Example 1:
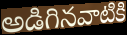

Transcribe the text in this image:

అడిగినవాటికి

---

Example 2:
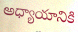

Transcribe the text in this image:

అధ్యాయానికి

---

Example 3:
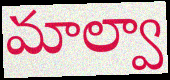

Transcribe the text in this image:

మాల్వా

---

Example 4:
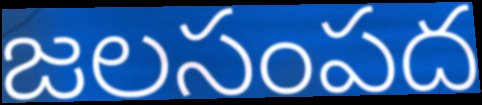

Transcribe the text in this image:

జలసంపద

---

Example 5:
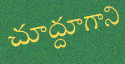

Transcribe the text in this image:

చూద్దూగాని